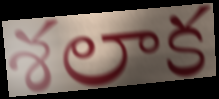
శలాక